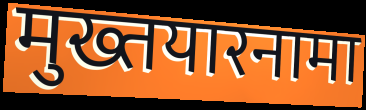
मुख्तयारनामा